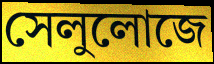
সেলুলোজে